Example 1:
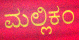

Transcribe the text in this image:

ಮಲ್ಲಿಕಂ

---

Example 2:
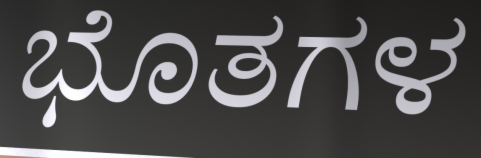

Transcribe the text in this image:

ಭೊತಗಳ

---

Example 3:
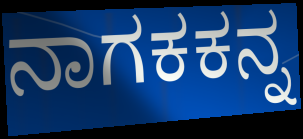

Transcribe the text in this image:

ನಾಗಕಕನ್ನ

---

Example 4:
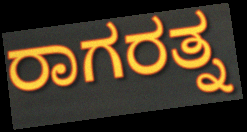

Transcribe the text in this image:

ರಾಗರತ್ನ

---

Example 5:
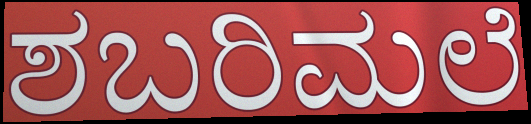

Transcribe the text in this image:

ಶಬರಿಮಲೆ